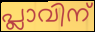
പ്ലാവിന്